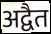
अद्वैत